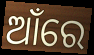
ଆଁରେ